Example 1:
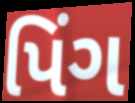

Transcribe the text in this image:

પિંગ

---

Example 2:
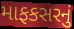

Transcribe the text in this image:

માફકસરનું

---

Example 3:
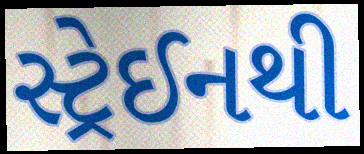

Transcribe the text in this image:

સ્ટ્રેઈનથી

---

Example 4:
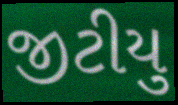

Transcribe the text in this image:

જીટીયુ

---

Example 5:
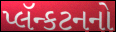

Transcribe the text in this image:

પ્લૅન્કટનનો